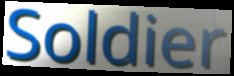
Soldier